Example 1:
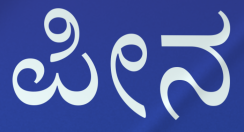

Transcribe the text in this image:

ಪೀನ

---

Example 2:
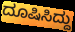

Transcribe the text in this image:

ದೂಷಿಸಿದ್ದು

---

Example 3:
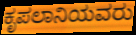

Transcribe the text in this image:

ಕೃಪಲಾನಿಯವರು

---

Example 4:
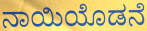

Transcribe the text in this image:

ನಾಯಿಯೊಡನೆ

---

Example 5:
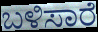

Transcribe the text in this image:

ಬಳಿಸಾರೆ